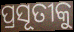
ପ୍ରସୂତୀକୁ